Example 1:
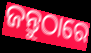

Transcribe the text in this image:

ଜନ୍ତୁଠାରେ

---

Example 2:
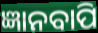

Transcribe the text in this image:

ଜ୍ଞାନବାପି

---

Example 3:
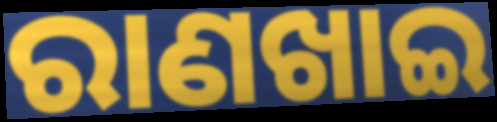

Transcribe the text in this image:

ରାଣଖାଇ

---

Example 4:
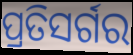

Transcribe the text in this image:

ପ୍ରତିସର୍ଗର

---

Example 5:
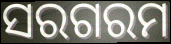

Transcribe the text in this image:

ସରଗରମ